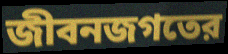
জীবনজগতের